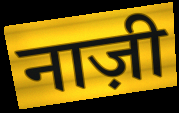
नाज़ी